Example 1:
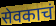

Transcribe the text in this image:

सेवकाचं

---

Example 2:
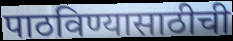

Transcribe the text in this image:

पाठविण्यासाठीची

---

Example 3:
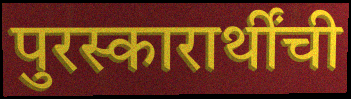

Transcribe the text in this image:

पुरस्कारार्थींची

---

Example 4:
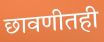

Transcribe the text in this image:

छावणीतही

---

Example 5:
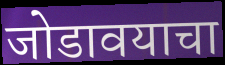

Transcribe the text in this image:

जोडावयाचा